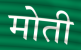
मोती